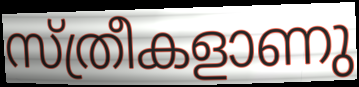
സ്ത്രീകളാണു